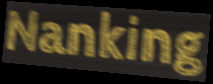
Nanking